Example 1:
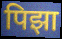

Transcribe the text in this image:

पिझा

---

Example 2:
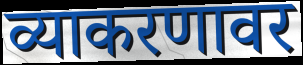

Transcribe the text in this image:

व्याकरणावर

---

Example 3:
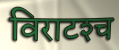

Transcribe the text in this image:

विराटश्च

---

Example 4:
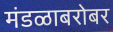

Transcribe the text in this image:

मंडळाबरोबर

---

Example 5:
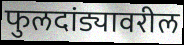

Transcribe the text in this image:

फुलदांड्यावरील